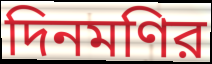
দিনমণির